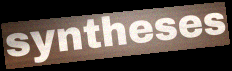
syntheses